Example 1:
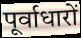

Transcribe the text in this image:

पूर्वाधारों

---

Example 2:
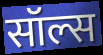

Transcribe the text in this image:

सॉल्स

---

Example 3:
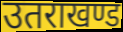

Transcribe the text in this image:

उतराखण्ड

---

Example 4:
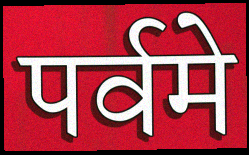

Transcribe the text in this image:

पर्वमे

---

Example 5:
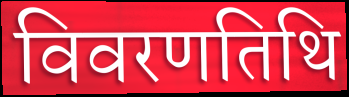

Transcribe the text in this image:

विवरणतिथि